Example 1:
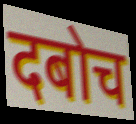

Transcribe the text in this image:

दबोच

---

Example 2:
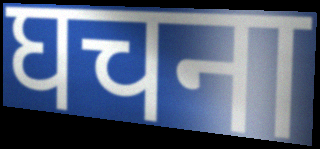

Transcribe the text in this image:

घचना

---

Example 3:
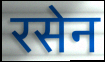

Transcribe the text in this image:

रसेन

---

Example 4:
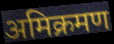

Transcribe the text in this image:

अमिक्रमण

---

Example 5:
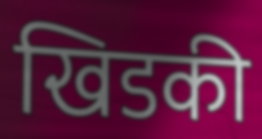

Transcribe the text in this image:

खिडकी